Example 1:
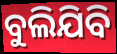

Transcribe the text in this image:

ବୁଲିଯିବି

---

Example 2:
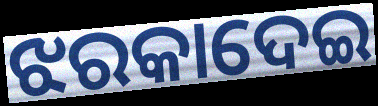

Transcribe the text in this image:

ଝରକାଦେଇ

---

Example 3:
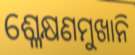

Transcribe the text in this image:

ଶ୍ଳେକ୍ଷଣମୁଖାନି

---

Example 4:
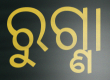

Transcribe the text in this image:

ରୁଗ୍ଣା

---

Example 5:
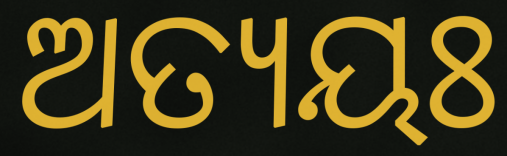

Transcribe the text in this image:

ଅତ୍ୟୟଃ